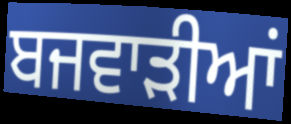
ਬਜਵਾੜੀਆਂ